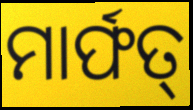
ମାର୍ଫତ୍